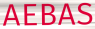
AEBAS